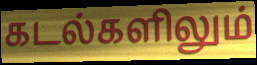
கடல்களிலும்